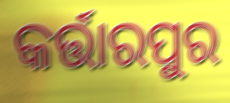
କର୍ତ୍ତାରପୁର